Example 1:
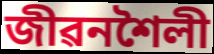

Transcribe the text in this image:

জীৱনশৈলী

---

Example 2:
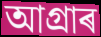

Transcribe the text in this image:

আগ্ৰাৰ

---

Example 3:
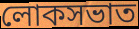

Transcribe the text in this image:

লোকসভাত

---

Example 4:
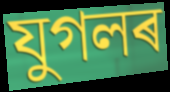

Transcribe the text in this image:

যুগলৰ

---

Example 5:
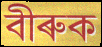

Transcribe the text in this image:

বীৰুক